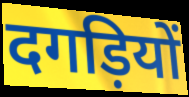
दगड़ियों